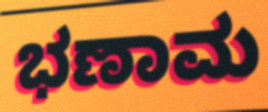
ಭಣಾಮ